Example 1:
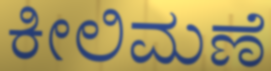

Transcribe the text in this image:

ಕೀಲಿಮಣೆ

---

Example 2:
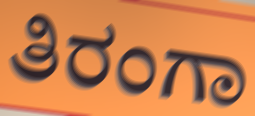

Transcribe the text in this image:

ತಿರಂಗಾ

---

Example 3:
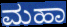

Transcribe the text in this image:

ಮಹಾ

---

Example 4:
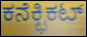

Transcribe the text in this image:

ಕನೆಕ್ಟಿಕಟ್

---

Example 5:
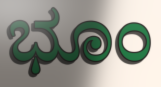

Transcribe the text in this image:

ಭೂಂ